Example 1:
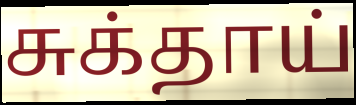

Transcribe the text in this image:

சுக்தாய்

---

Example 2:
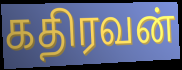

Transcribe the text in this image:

கதிரவன்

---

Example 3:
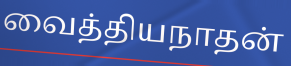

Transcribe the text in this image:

வைத்தியநாதன்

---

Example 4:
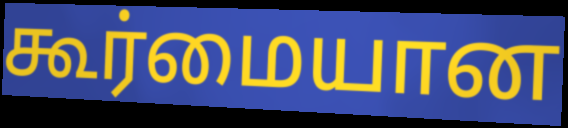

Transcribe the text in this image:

கூர்மையான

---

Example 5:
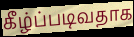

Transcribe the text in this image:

கீழ்ப்படிவதாக